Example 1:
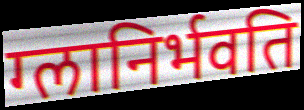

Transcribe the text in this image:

ग्लानिर्भवति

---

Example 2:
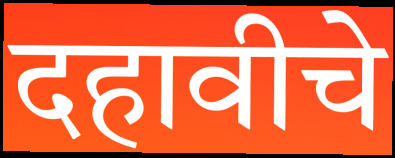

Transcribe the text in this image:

दहावीचे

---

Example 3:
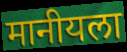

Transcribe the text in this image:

मानीयला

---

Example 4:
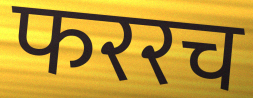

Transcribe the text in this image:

फररच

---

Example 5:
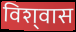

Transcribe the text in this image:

विश्वास